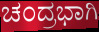
ಚಂದ್ರಭಾಗಿ